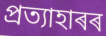
প্ৰত্যাহাৰৰ